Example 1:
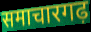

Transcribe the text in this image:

समाचारगढ़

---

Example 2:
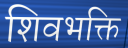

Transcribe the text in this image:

शिवभक्ति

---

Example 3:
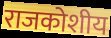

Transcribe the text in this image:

राजकोशीय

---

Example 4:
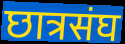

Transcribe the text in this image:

छात्रसंघ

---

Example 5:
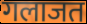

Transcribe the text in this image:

गलाजत